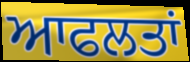
ਆਫਲਤਾਂ